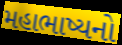
મહાભાષ્યનો